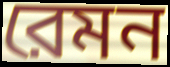
রেমন